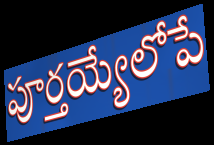
పూర్తయ్యేలోపే